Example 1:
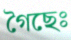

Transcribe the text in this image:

গৈছেঃ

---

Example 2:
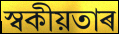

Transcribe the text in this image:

স্বকীয়তাৰ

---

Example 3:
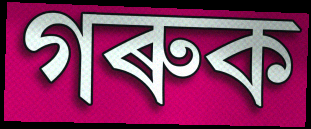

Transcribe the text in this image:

গৰুক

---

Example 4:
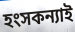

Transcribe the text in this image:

হংসকন্যাই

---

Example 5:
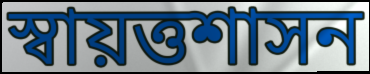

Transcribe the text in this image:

স্বায়ত্তশাসন